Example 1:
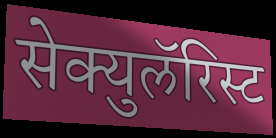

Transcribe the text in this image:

सेक्युलॅरिस्ट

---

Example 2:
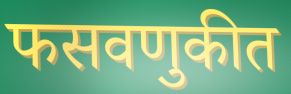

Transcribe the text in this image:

फसवणुकीत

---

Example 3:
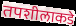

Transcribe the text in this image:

तपशीलाकडे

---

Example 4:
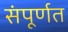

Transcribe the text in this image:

संपूर्णत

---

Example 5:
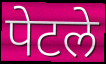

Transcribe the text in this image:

पेटले